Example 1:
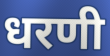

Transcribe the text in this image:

धरणी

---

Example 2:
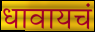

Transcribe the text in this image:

धावायचं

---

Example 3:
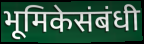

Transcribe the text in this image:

भूमिकेसंबंधी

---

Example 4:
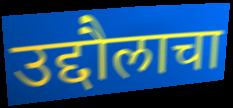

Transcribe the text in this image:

उद्दौलाचा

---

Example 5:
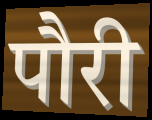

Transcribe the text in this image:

पौरी